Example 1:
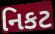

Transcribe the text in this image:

નિકટ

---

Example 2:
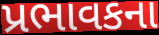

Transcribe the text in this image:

પ્રભાવકના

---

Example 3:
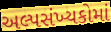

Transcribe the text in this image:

અલ્પસંખ્યકોમાં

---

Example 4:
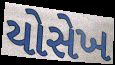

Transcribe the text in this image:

યોસેખ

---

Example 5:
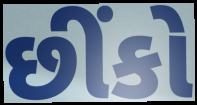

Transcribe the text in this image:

છીંકો